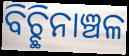
ବିଚ୍ଛିନାଞ୍ଚଳ